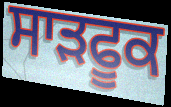
ਸਾੜਫੂਕ